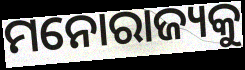
ମନୋରାଜ୍ୟକୁ